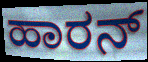
ಹಾರನ್